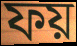
ফয়